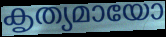
കൃത്യമായോ